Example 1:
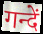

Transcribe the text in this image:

गन्दें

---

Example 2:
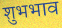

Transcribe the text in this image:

शुभभाव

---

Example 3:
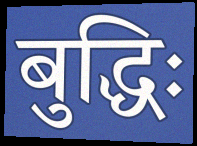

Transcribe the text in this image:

बुद्धिः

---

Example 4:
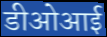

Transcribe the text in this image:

डीओआई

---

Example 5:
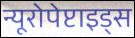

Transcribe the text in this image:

न्यूरोपेप्टाइड्स